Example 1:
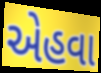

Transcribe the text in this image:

એહવા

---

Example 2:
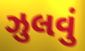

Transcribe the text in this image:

ઝુલવું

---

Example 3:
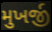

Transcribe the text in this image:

મુખર્જી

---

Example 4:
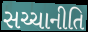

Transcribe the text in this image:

સચ્ચાનીતિ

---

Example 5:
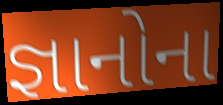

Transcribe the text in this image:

જ્ઞાનોના